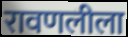
रावणलीला